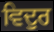
ਵਿਦੁਰ